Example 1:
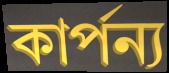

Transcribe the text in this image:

কার্পন্য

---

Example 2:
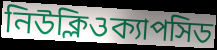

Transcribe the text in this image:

নিউক্লিওক্যাপসিড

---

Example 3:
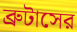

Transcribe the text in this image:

ব্রুটাসের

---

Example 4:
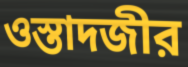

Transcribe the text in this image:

ওস্তাদজীর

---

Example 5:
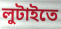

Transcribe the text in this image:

লুটাইতে